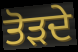
ਤੋੜਦੇ